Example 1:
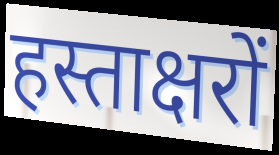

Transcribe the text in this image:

हस्ताक्षरों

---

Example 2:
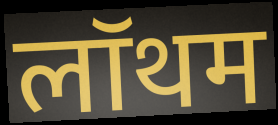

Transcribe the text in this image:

लॉथम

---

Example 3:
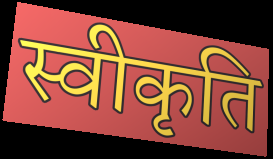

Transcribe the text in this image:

स्वीकृति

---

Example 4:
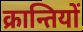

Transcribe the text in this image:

क्रान्तियों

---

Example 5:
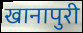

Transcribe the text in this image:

खानापुरी